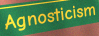
Agnosticism